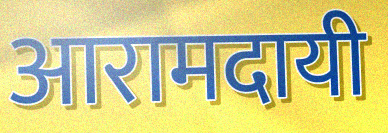
आरामदायी